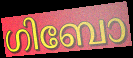
ഗിബോ